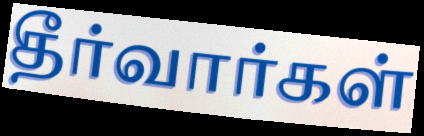
தீர்வார்கள்